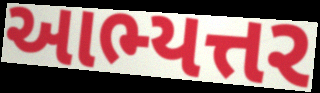
આભ્યત્તર